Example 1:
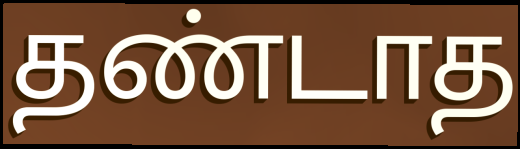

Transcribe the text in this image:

தண்டாத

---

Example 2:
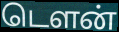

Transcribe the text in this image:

டௌன்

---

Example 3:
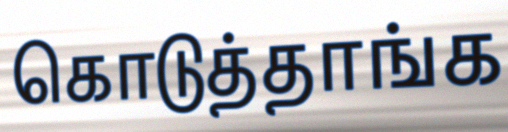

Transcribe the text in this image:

கொடுத்தாங்க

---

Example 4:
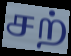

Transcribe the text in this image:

சற்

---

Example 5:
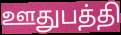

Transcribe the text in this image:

ஊதுபத்தி